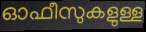
ഓഫീസുകളുള്ള